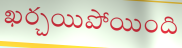
ఖర్చయిపోయింది